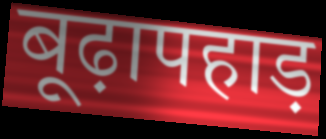
बूढ़ापहाड़